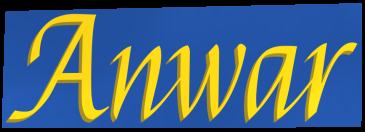
Anwar